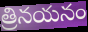
త్రినయనం